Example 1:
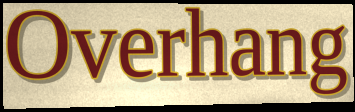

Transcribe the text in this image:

Overhang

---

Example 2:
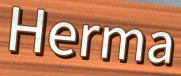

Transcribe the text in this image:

Herma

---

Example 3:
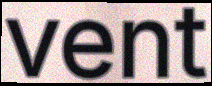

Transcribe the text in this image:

vent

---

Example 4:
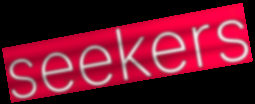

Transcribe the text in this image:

seekers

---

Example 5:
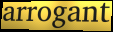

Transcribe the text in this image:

arrogant